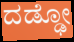
ದಡ್ಢೋ